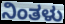
ನಿಂತಳು